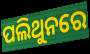
ପଲିଥୁନରେ